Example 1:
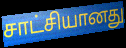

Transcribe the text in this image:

சாட்சியானது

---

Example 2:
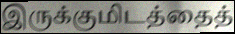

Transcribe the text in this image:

இருக்குமிடத்தைத்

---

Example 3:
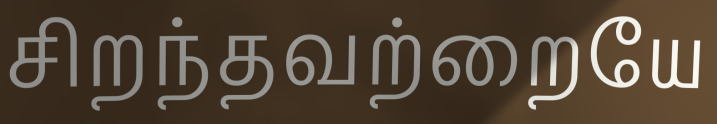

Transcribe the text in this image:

சிறந்தவற்றையே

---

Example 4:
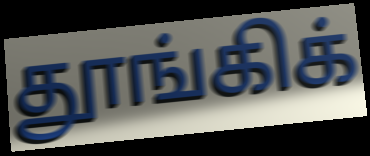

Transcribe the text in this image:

தூங்கிக்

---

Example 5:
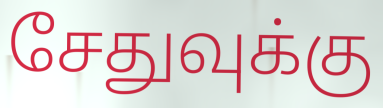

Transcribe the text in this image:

சேதுவுக்கு